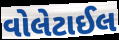
વોલેટાઈલ